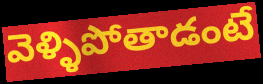
వెళ్ళిపోతాడంటే